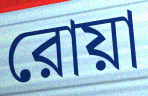
রোয়া